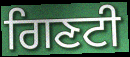
ਗਿਣਟੀ